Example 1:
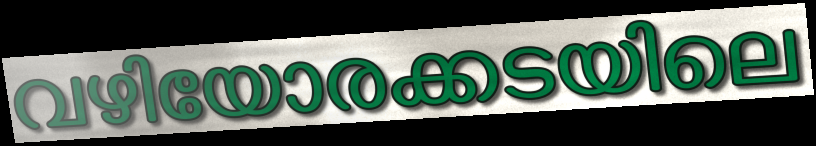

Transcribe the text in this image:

വഴിയോരക്കടയിലെ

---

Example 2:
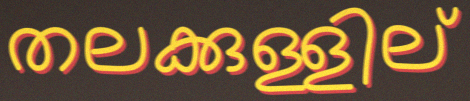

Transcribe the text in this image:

തലക്കുള്ളില്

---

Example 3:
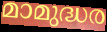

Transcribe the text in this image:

മാമുദ്ധര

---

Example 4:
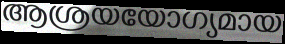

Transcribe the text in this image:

ആശ്രയയോഗ്യമായ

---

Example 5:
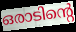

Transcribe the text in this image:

ഒരാടിന്റെ